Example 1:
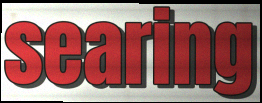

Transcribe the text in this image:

searing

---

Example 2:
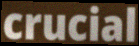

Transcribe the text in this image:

crucial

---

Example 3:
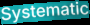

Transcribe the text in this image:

Systematic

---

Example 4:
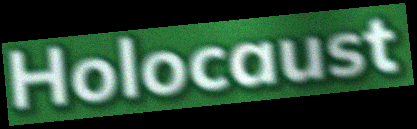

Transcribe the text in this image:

Holocaust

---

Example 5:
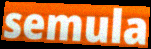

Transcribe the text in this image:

semula